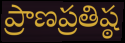
ప్రాణప్రతిష్ఠ